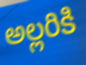
అల్లరికి